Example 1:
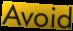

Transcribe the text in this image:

Avoid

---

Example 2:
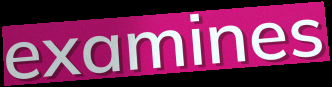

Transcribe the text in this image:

examines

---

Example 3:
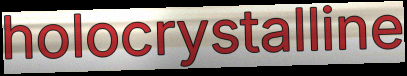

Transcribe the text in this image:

holocrystalline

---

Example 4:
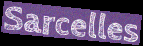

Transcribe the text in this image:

Sarcelles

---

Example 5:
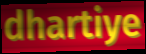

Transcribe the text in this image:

dhartiye